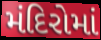
મંદિરોમાં